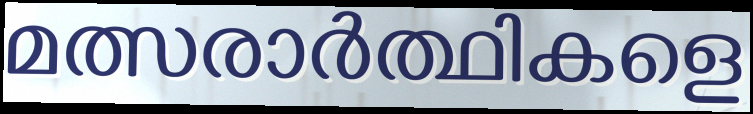
മത്സരാർത്ഥികളെ